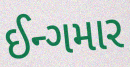
ઈન્ગમાર